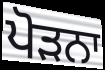
ਪੋੜਨਾ